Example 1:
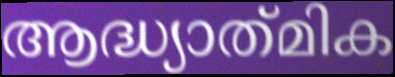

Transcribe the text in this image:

ആദ്ധ്യാത്‌മിക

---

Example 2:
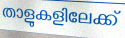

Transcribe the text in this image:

താളുകളിലേക്ക്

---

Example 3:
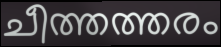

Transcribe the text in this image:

ചീത്തത്തരം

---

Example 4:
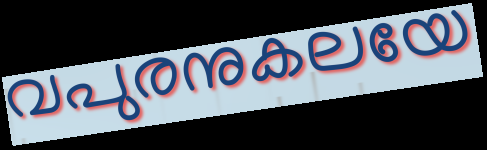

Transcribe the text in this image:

വപുരനുകലയേ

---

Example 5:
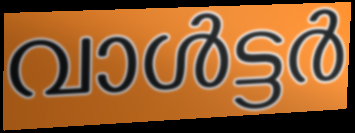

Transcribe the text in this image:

വാൾട്ടർ